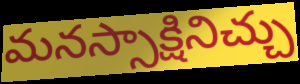
మనస్సాక్షినిచ్చు